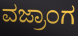
ವಜ್ರಾಂಗ